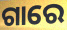
ଗାରେ